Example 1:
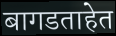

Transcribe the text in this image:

बागडताहेत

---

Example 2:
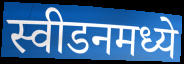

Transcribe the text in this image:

स्वीडनमध्ये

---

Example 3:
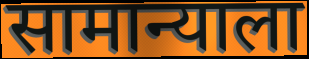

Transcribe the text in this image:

सामान्याला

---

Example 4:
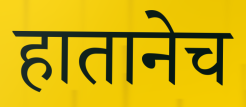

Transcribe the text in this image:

हातानेच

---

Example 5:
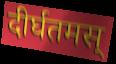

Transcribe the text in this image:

दीर्घतमस्